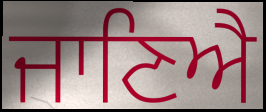
ਜਾਣਿਐ